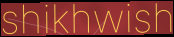
shikhwish